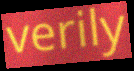
verily